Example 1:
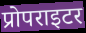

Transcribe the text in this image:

प्रोपराइटर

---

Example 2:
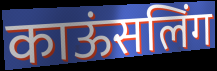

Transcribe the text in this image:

काऊंसलिंग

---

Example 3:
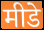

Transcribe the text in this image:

मीडे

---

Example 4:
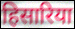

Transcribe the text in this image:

हिसारिया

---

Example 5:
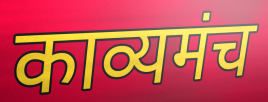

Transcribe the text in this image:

काव्यमंच